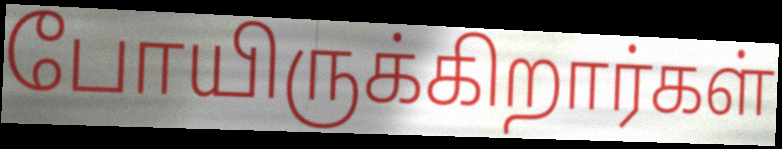
போயிருக்கிறார்கள்